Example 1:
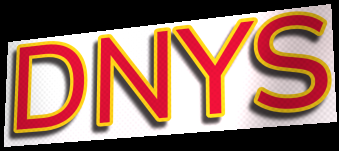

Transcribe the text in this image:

DNYS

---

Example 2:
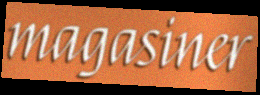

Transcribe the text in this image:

magasiner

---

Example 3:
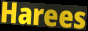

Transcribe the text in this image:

Harees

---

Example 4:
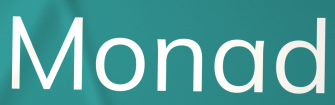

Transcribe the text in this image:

Monad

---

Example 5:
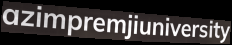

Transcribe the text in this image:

azimpremjiuniversity